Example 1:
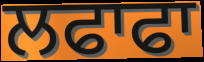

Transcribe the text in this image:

ਲਫਾਫਾ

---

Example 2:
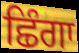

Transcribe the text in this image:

ਛਿੰਗਾ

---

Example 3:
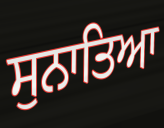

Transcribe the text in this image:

ਸੁਨਾਤਿਆ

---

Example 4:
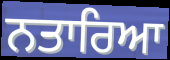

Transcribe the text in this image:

ਨਤਾਰਿਆ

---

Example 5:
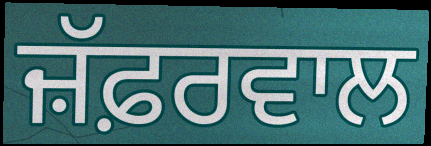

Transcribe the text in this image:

ਜ਼ੱਫ਼ਰਵਾਲ